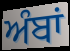
ਅੰਬਾਂ